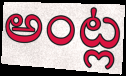
అంట్ల